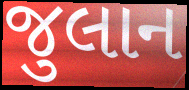
જુલાન